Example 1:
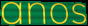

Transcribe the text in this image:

anos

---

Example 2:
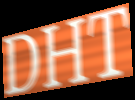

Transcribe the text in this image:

DHT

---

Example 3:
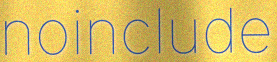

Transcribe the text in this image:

noinclude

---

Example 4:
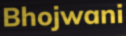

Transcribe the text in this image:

Bhojwani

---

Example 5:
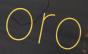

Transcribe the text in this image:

oro